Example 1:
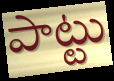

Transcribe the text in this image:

పాట్టు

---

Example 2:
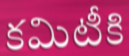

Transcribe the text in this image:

కమిటీకి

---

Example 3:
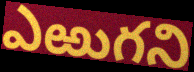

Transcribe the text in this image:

ఎఱుగని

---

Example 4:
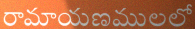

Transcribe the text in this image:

రామాయణములలో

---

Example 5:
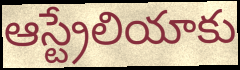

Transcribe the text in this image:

ఆస్ట్రేలియాకు